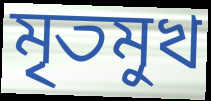
মৃতমুখ